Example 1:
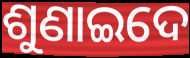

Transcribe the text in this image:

ଶୁଣାଇଦେ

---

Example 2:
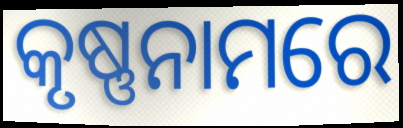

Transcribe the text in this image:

କୃଷ୍ଣନାମରେ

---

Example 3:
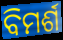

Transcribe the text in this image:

ବିମର୍ଶ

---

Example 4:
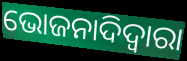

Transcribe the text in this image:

ଭୋଜନାଦିଦ୍ୱାରା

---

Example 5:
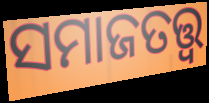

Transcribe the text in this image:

ସମାଜତତ୍ତ୍ୱ